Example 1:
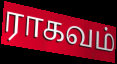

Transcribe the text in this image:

ராகவம்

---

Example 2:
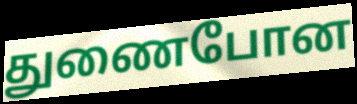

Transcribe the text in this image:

துணைபோன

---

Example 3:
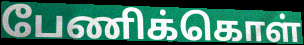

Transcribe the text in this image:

பேணிக்கொள்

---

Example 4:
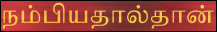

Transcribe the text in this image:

நம்பியதால்தான்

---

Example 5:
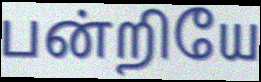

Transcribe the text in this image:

பன்றியே